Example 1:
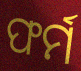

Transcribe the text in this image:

ଫର୍ମ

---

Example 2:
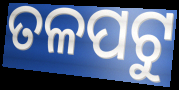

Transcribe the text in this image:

ତଳପଟୁ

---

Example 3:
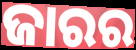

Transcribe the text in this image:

ଜାରର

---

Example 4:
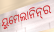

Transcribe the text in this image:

ୟୁମେଲାନିନ୍‌ର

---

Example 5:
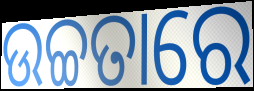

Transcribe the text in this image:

ଉଚ୍ଚତାରେ